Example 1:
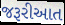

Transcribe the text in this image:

જરૂરીઆત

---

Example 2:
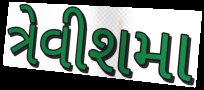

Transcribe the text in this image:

ત્રેવીશમા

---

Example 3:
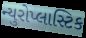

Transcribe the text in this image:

ન્યુરોપ્લાસ્ટિક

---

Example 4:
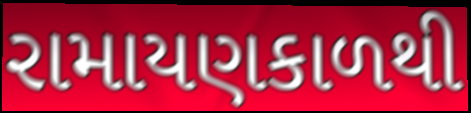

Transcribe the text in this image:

રામાયણકાળથી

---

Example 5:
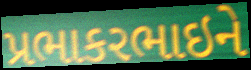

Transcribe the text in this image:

પ્રભાકરભાઇને